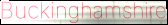
Buckinghamshire